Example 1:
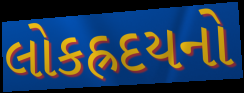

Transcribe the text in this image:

લોકહ્રદયનો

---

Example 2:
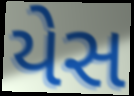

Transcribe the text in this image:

યેસ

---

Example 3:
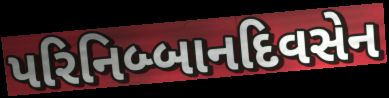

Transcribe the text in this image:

પરિનિબ્બાનદિવસેન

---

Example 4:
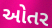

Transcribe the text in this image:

ઓતર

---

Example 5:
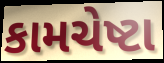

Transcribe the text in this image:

કામચેષ્ટા